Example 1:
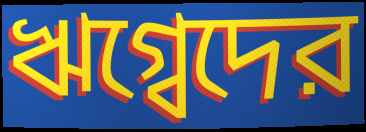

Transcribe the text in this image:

ঋগ্বেদের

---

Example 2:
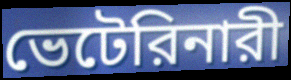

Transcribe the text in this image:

ভেটেরিনারী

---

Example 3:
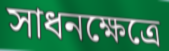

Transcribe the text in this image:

সাধনক্ষেত্রে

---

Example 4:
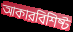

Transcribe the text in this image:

আকারবিশিষ্ট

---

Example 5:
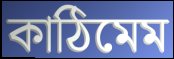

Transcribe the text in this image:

কাঠিমেম